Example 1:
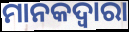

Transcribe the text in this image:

ମାନକଦ୍ୱାରା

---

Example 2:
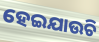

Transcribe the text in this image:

ହେଇଯାଉଚି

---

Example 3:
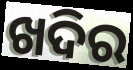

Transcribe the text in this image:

ଖଦିର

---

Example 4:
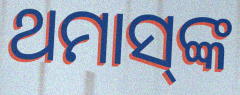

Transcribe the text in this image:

ଥମାସ୍‌ଙ୍କ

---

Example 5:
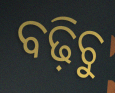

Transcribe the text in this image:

ବଢ଼ିଚୁ